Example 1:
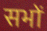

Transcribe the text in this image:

सभों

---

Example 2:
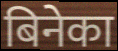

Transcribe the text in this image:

बिनेका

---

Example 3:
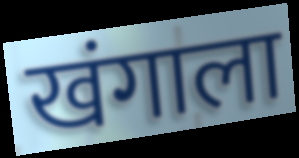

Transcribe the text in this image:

खंगाला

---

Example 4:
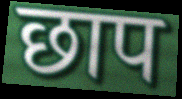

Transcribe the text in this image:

छाप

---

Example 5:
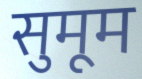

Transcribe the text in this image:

सुमूम